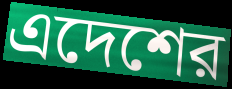
এদেশের